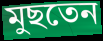
মুছতেন